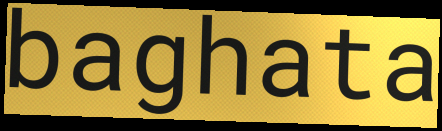
baghata